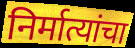
निर्मात्यांचा